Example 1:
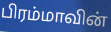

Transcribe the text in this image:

பிரம்மாவின்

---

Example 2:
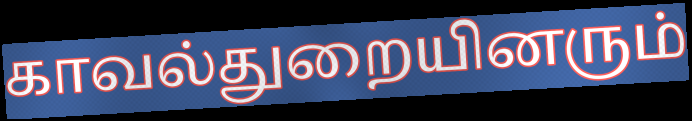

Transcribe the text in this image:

காவல்துறையினரும்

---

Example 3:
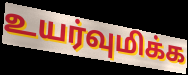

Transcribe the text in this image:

உயர்வுமிக்க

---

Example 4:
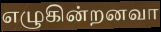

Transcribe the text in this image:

எழுகின்றனவா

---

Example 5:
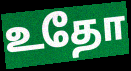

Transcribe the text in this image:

உதோ